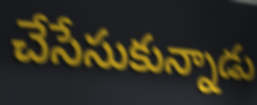
చేసేసుకున్నాడు